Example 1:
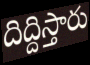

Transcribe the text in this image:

దిద్దిస్తారు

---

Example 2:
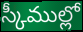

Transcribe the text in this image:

స్కీముల్లో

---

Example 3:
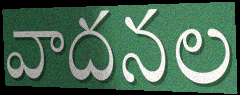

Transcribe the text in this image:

వాదనల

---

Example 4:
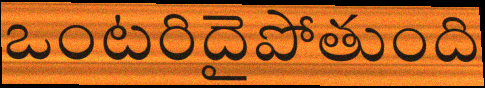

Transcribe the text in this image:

ఒంటరిదైపోతుంది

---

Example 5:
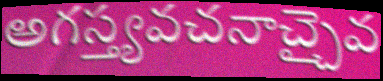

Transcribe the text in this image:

అగస్త్యవచనాచ్చైవ